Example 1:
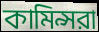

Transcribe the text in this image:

কামিন্সরা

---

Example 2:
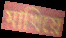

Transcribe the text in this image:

মাখিয়ে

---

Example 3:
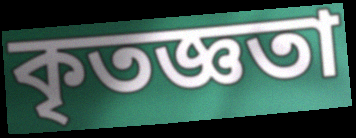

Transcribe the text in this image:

কৃতজ্ঞতা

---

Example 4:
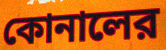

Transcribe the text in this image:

কোনালের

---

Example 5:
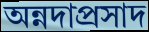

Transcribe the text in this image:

অন্নদাপ্রসাদ